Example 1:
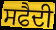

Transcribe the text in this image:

ਸਫੈਦੀ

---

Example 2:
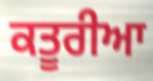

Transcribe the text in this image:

ਕਤੂਰੀਆ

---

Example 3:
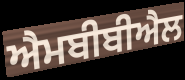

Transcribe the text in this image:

ਐਮਬੀਬੀਐਲ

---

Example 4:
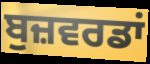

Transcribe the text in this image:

ਬੁਜ਼ਵਰਡਾਂ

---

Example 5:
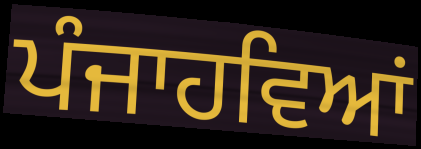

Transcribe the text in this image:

ਪੰਜਾਹਵਿਆਂ